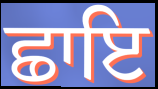
ਛਾਇ